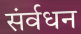
संर्वधन